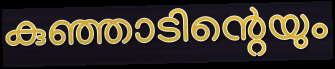
കുഞ്ഞാടിന്റെയും